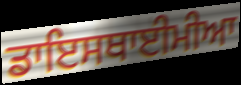
ਡਾਇਸਥਾਈਮੀਆ